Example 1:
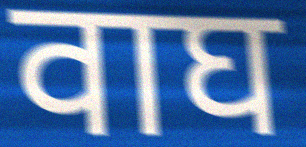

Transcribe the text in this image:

वाघ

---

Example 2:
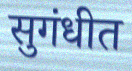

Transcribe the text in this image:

सुगंधीत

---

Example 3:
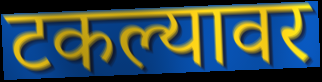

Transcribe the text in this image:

टकल्यावर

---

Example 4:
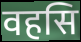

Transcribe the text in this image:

वहसि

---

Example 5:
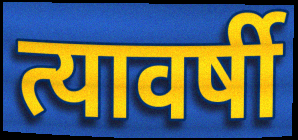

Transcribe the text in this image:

त्यावर्षी